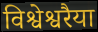
विश्वेश्वरैया